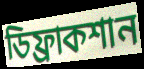
ডিফ্রাকশান